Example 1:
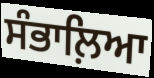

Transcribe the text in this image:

ਸੰਭਾਲ਼ਿਆ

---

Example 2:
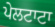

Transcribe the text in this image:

ਪੇਲਟਾਟਾ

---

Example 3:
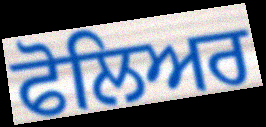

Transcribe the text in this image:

ਫੋਲਿਅਰ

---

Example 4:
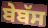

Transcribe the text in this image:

ਬੇਬੱਸ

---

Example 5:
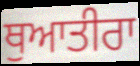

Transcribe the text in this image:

ਥੁਆਤੀਰਾ